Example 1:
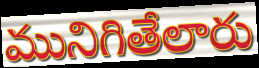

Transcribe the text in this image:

మునిగితేలారు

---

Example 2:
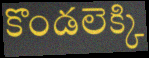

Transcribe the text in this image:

కొండలెక్కి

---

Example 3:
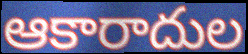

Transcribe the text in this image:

ఆకారాదుల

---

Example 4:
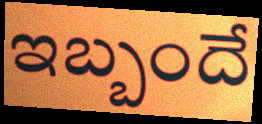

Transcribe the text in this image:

ఇబ్బందే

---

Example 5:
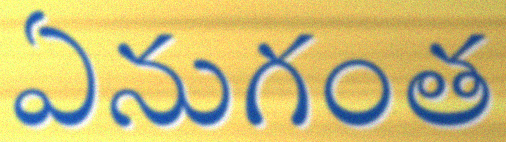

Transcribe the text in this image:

ఏనుగంత